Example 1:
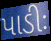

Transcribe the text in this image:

પાડીઃ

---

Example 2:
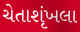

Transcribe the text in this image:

ચેતાશૃંખલા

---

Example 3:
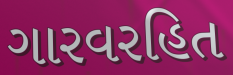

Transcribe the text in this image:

ગારવરહિત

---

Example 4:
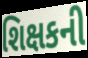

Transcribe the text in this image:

શિક્ષકની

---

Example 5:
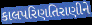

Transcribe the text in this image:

કાલપરિણતિરાણીને